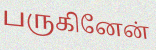
பருகினேன்